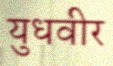
युधवीर